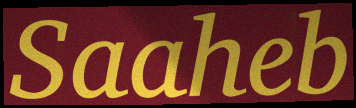
Saaheb